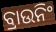
ବ୍ରାଉନିଂ